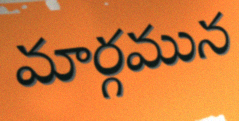
మార్గమున